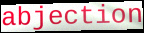
abjection